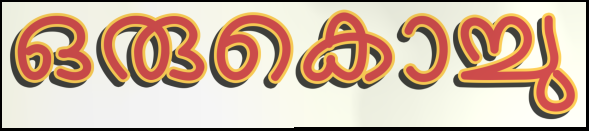
ഒരുകൊച്ചു